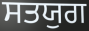
ਸਤਯੁਗ